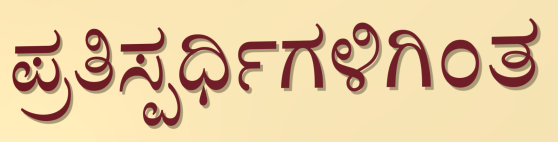
ಪ್ರತಿಸ್ಪರ್ಧಿಗಳಿಗಿಂತ